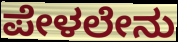
ಪೇಳಲೇನು